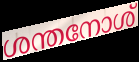
ശന്തനോശ്